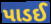
પાડઈ